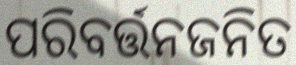
ପରିବର୍ତ୍ତନଜନିତ